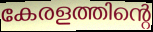
കേരളത്തിന്റെ